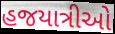
હજયાત્રીઓ